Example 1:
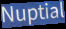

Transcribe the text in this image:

Nuptial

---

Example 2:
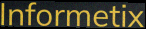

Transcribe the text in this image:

Informetix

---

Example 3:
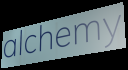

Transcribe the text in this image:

alchemy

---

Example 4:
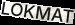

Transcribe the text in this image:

LOKMAT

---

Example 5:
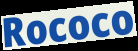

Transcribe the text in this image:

Rococo